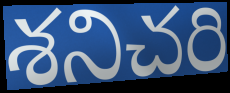
శనిచరి